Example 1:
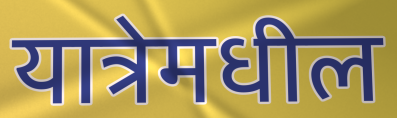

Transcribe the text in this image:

यात्रेमधील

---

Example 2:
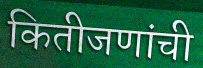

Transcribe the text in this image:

कितीजणांची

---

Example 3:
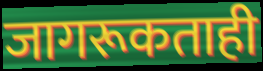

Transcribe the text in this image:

जागरूकताही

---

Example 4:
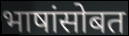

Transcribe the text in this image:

भाषांसोबत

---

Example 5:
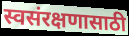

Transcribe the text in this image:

स्वसंरक्षणासाठी